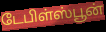
டேபிள்ஸ்பூன்